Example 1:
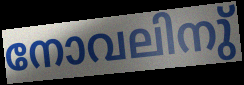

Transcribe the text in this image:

നോവലിനു്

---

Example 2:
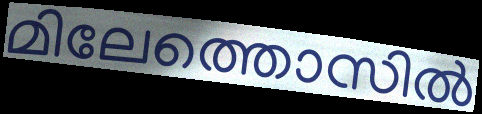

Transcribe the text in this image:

മിലേത്തൊസിൽ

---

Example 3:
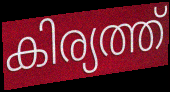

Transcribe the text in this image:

കിര്യത്ത്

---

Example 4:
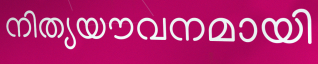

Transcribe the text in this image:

നിത്യയൗവനമായി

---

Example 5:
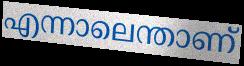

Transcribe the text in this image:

എന്നാലെന്താണ്